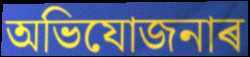
অভিযোজনাৰ